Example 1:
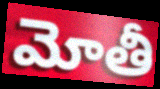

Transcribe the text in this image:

మోతీ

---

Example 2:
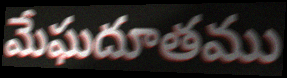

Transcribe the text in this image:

మేఘదూతము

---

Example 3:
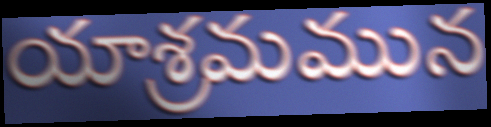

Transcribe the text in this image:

యాశ్రమమున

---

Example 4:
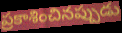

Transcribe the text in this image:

ప్రకాశించినప్పుడు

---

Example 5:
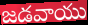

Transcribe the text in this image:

జడవాయు